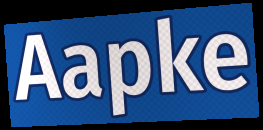
Aapke